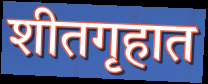
शीतगृहात